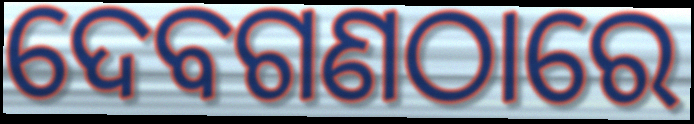
ଦେବଗଣଠାରେ